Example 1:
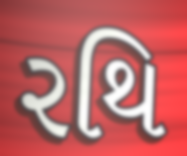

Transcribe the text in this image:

રથિ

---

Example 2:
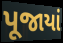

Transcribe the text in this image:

પૂજાયાં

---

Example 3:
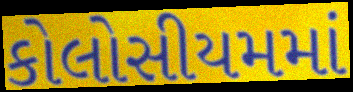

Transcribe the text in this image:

કોલોસીયમમાં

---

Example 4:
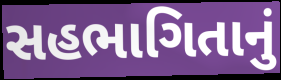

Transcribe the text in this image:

સહભાગિતાનું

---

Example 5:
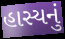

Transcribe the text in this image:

હાસ્યનું